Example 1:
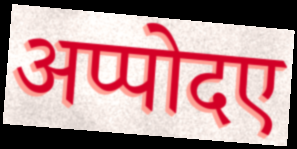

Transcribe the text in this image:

अप्पोदए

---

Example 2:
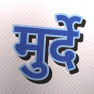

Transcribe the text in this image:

मुर्दे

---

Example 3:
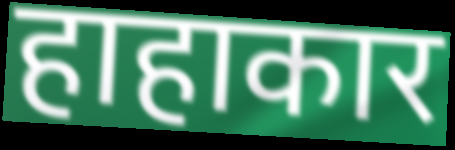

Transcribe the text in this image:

हाहाकार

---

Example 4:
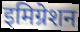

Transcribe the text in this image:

इमिग्रेशन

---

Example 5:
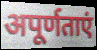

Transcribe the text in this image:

अपूर्णताएं